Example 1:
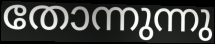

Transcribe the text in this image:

തോന്നുന്നു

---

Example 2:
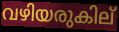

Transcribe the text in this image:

വഴിയരുകില്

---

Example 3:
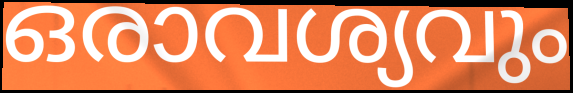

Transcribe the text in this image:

ഒരാവശ്യവും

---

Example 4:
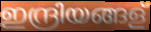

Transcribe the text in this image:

ഇന്ദ്രിയങ്ങള്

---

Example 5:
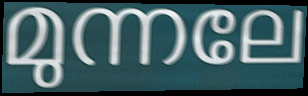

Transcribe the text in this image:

മുന്നലേ